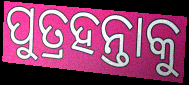
ପୁତ୍ରହନ୍ତାକୁ